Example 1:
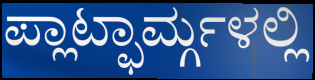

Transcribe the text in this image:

ಪ್ಲಾಟ್ಫಾರ್ಮ್ಗಳಲ್ಲಿ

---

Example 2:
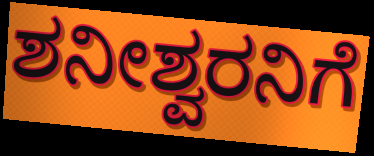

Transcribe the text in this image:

ಶನೀಶ್ವರನಿಗೆ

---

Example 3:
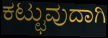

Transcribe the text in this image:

ಕಟ್ಟುವುದಾಗಿ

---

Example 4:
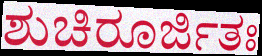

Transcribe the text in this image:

ಶುಚಿರೂರ್ಜಿತಃ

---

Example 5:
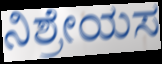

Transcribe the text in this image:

ನಿಶ್ರೇಯಸ